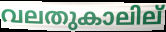
വലതുകാലില്